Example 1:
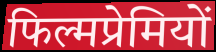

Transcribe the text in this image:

फिल्मप्रेमियों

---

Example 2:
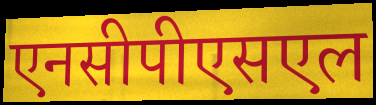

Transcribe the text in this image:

एनसीपीएसएल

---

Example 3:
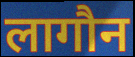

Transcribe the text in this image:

लागौन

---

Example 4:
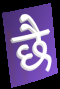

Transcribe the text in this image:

छै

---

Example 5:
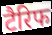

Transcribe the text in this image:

टैरिफ